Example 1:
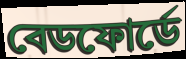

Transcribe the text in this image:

বেডফোর্ডে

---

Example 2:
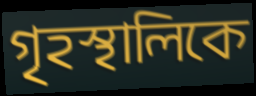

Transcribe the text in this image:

গৃহস্থালিকে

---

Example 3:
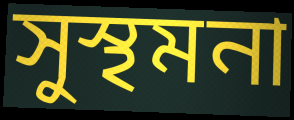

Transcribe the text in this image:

সুস্থমনা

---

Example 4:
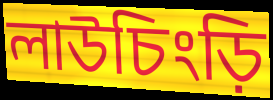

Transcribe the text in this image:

লাউচিংড়ি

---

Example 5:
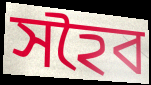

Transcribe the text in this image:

সহৈব